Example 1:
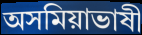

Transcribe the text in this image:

অসমিয়াভাষী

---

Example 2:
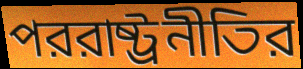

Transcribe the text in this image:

পররাষ্ট্রনীতির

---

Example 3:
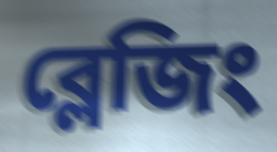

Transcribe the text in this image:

ব্লেজিং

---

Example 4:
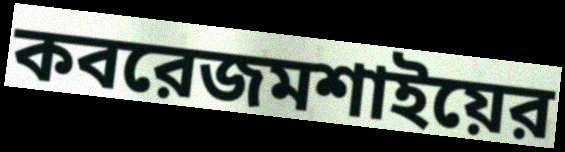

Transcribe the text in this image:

কবরেজমশাইয়ের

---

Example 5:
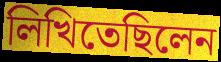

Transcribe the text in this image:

লিখিতেছিলেন